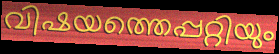
വിഷയത്തെപ്പറ്റിയും